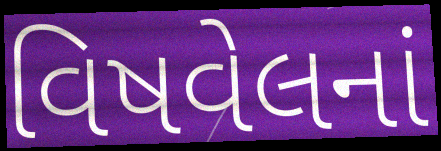
વિષવેલનાં